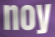
noy